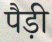
पैड़ी